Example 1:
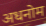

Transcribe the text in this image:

अधनोम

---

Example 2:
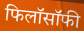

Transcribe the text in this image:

फिलॉसॉफी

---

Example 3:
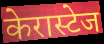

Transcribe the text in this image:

केरास्टेज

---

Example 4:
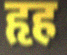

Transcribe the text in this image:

हृह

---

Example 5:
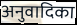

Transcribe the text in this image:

अनुवादिका